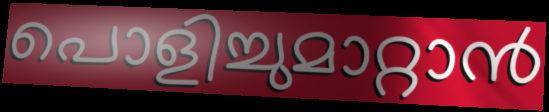
പൊളിച്ചുമാറ്റാൻ